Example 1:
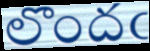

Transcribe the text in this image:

లొందఁ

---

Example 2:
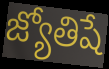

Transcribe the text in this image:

జ్యోతిషే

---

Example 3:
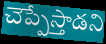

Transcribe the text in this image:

చెప్పేస్తాడని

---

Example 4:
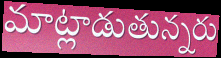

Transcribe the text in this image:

మాట్లాడుతున్నరు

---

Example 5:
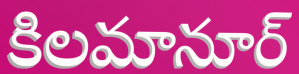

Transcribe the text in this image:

కిలమానూర్